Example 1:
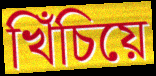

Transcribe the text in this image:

খিঁচিয়ে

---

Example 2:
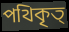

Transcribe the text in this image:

পথিকৃত্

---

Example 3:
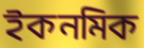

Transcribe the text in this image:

ইকনমিক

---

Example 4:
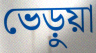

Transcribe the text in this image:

ভেড়ুয়া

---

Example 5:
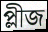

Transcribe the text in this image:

প্লীজ